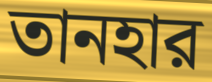
তানহার